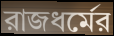
রাজধর্মের